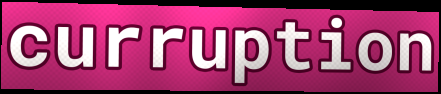
curruption